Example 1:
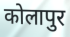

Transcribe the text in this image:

कोलापुर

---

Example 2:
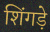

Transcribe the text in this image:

शिंगड़े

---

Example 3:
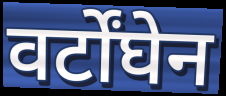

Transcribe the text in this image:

वर्टोंघेन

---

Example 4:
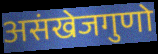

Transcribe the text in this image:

असंखेजगुणो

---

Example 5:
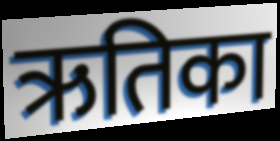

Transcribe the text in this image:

ऋतिका